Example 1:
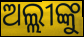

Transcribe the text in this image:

ଅଲ୍ଲୀଙ୍କୁ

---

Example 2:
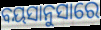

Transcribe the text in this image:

ବୟସାନୁସାରେ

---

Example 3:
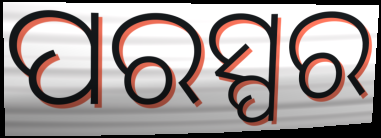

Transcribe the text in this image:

ପରସ୍ପର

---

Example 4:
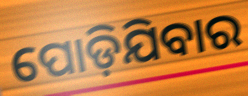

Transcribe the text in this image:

ପୋଡ଼ିଯିବାର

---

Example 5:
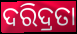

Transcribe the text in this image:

ଦରିଦ୍ରତା